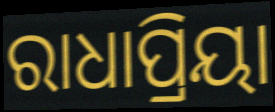
ରାଧାପ୍ରିୟା